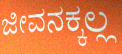
ಜೀವನಕ್ಕಲ್ಲ